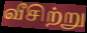
வீசிற்று